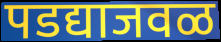
पडद्याजवळ